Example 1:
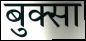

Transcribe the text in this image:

बुक्सा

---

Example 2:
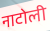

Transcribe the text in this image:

नाटोली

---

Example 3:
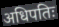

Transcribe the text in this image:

अधिपतिः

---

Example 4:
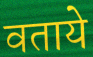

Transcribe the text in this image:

वताये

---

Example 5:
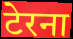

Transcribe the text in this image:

टेरना